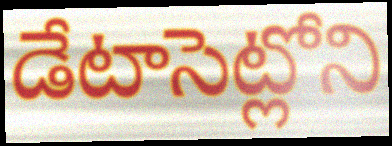
డేటాసెట్లోని